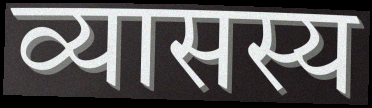
व्यासस्य